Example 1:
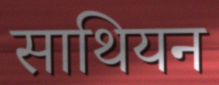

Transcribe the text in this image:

साथियन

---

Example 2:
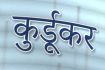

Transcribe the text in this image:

कुर्डूकर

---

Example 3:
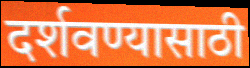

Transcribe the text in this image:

दर्शवण्यासाठी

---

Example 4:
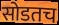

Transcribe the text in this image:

सोडतच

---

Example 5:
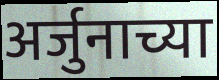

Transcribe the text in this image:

अर्जुनाच्या